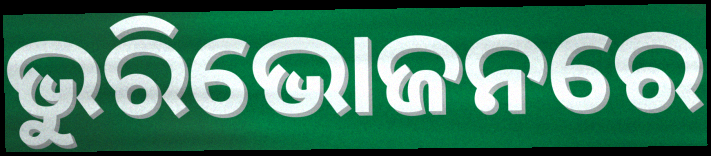
ଭୁରିଭୋଜନରେ